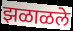
झळाळले